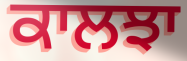
ਕਾਲਝਾ